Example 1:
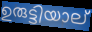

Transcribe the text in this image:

ഉരുട്ടിയാല്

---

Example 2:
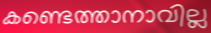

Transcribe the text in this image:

കണ്ടെത്താനാവില്ല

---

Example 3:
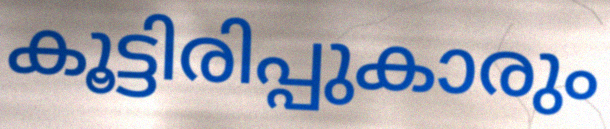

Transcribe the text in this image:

കൂട്ടിരിപ്പുകാരും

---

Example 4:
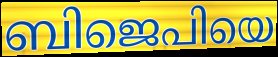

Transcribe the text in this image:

ബിജെപിയെ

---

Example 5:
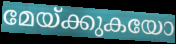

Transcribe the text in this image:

മേയ്ക്കുകയോ